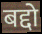
बद्दो